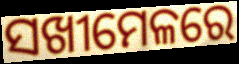
ସଖୀମେଳରେ